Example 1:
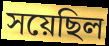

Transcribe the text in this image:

সয়েছিল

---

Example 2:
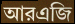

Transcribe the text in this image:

আরএজি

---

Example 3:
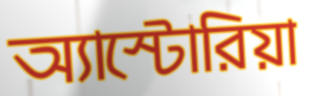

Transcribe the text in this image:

অ্যাস্টোরিয়া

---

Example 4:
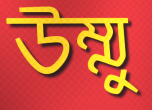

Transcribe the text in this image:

উম্মু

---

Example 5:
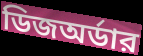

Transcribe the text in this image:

ডিজঅর্ডার